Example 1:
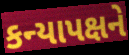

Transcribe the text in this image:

કન્યાપક્ષને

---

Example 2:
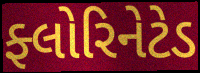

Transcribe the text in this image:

ફ્લોરિનેટેડ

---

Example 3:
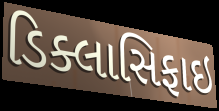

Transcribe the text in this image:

ડિક્લાસિફાઇ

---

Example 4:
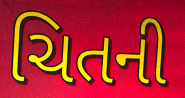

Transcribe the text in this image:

ચિતની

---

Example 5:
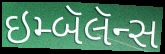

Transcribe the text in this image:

ઇમ્બૅલૅન્સ